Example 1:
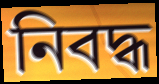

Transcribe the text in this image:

নিবদ্ধ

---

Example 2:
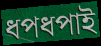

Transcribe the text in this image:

ধপধপাই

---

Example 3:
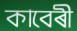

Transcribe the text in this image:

কাবেৰী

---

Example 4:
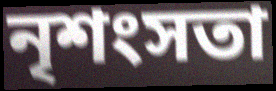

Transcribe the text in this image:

নৃশংসতা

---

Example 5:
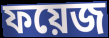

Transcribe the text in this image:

ফয়েজ